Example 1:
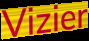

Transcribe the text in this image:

Vizier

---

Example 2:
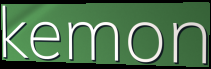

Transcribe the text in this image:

kemon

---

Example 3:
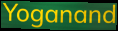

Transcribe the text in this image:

Yoganand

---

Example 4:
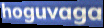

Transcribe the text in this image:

hoguvaga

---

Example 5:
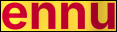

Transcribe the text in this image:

ennu